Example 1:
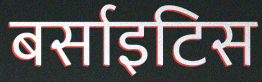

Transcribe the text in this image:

बर्साइटिस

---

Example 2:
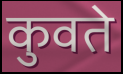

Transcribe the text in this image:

कुवते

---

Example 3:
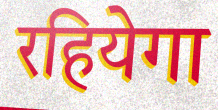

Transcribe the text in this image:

रहियेगा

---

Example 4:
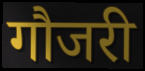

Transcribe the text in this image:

गौजरी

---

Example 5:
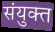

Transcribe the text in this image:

संयुक्‍त